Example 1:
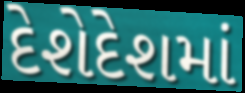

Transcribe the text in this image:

દેશેદેશમાં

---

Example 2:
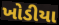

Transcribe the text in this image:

ખોડીયા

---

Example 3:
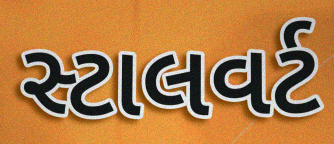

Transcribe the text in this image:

સ્ટાલવર્ટ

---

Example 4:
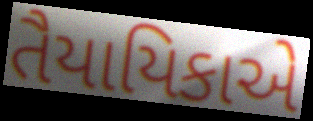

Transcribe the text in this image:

તૈયાયિકાએ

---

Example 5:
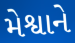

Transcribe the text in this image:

મેશ્વાને